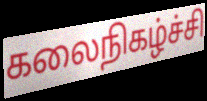
கலைநிகழ்ச்சி